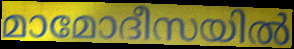
മാമോദീസയിൽ